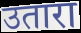
उतारा